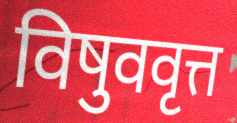
विषुववृत्त